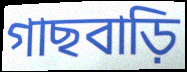
গাছবাড়ি